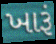
ખારૂં